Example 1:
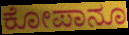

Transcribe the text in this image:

ಕೋಪಾನೂ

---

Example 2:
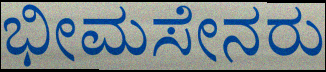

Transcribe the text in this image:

ಭೀಮಸೇನರು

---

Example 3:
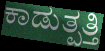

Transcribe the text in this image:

ಕಾಡುತ್ಪತ್ತಿ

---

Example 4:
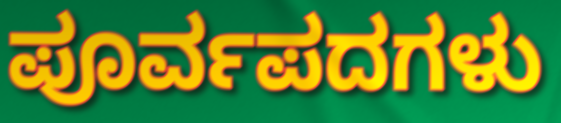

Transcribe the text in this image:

ಪೂರ್ವಪದಗಳು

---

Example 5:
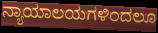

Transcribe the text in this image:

ನ್ಯಾಯಾಲಯಗಳಿಂದಲೂ